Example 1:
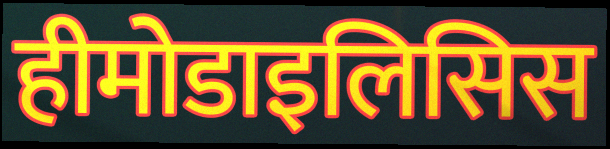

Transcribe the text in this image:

हीमोडाइलिसिस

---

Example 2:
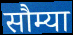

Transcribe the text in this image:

सौम्या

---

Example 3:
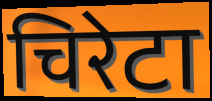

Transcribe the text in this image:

चिरेटा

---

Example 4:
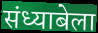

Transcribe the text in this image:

संध्याबेला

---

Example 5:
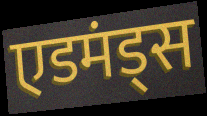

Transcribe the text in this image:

एडमंड्स